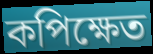
কপিক্ষেত